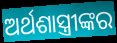
ଅର୍ଥଶାସ୍ତ୍ରୀଙ୍କର